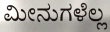
ಮೀನುಗಳೆಲ್ಲ